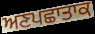
ਅਣਪਛਾਤਾਕ